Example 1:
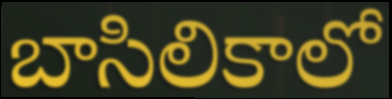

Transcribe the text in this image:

బాసిలికాలో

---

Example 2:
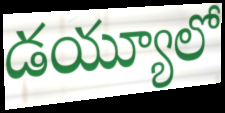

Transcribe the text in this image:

డయ్యూలో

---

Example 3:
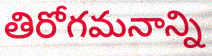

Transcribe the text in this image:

తిరోగమనాన్ని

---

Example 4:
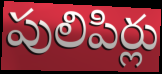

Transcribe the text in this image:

పులిపిర్లు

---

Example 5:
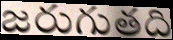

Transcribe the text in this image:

జరుగుతది